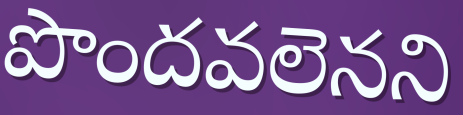
పొందవలెనని